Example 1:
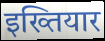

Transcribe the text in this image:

इख्तियार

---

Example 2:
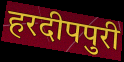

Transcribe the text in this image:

हरदीपपुरी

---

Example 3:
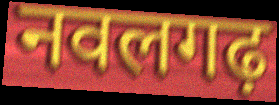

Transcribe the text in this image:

नवलगढ़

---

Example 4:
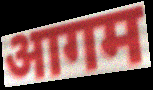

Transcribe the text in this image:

आगम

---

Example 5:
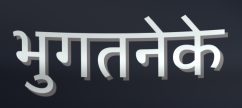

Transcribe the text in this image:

भुगतनेके